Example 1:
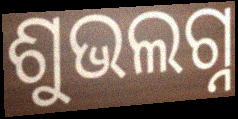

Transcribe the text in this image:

ଶୁଭଲଗ୍ନ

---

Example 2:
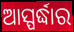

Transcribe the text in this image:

ଆସ୍ପର୍ଦ୍ଧାର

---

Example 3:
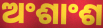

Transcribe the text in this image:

ଅଂଶାଂଶ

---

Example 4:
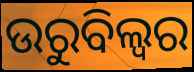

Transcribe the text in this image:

ଉରୁବିଲ୍ଵର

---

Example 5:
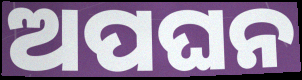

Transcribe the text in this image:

ଅପଘନ